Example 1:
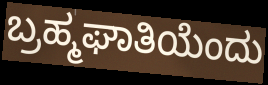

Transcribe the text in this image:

ಬ್ರಹ್ಮಘಾತಿಯೆಂದು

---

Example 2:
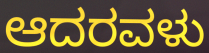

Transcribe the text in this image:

ಆದರವಳು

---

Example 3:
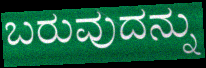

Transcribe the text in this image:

ಬರುವುದನ್ನು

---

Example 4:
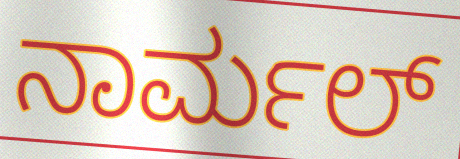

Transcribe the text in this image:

ನಾರ್ಮಲ್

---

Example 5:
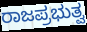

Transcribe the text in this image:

ರಾಜಪ್ರಭುತ್ವ